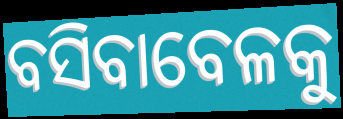
ବସିବାବେଳକୁ